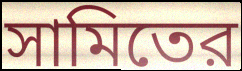
সামিতের